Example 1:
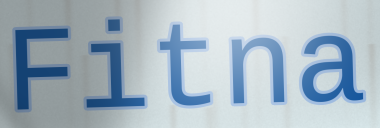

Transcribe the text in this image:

Fitna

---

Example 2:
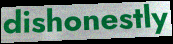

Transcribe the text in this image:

dishonestly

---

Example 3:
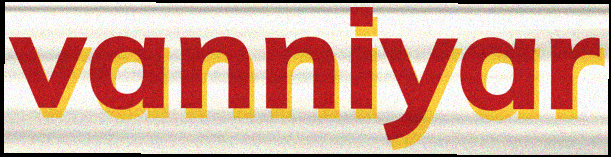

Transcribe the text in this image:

vanniyar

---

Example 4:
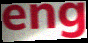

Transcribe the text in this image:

eng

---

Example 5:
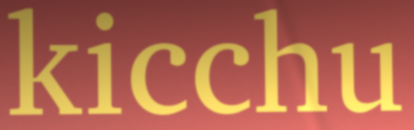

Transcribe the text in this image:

kicchu